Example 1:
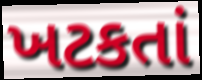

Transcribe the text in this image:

ખટકતાં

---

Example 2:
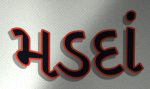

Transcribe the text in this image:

મડદાં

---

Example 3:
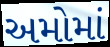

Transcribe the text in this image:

અમોમાં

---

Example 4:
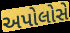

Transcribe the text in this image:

અપોલોસે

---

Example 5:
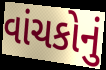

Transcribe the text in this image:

વાંચકોનું